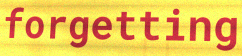
forgetting